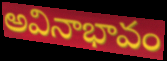
అవినాభావం